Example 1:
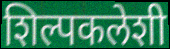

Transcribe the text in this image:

शिल्पकलेशी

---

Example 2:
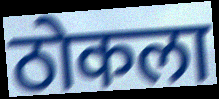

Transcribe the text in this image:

ठोकला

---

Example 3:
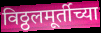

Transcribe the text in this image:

विठ्ठलमूर्तीच्या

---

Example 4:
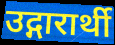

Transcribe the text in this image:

उद्गारार्थी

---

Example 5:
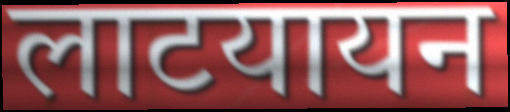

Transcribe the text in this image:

लाटयायन